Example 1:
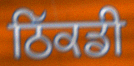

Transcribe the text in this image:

ਠਿੱਕਡੀ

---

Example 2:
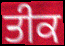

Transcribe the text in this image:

ਤੀਕ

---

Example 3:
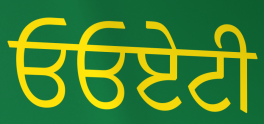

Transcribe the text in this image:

ਓਓਏਟੀ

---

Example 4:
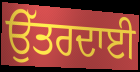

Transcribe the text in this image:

ਉੱਤਰਦਾਈ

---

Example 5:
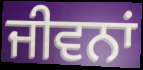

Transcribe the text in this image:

ਜੀਵਨਾਂ